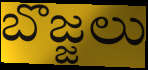
బొజ్జలు